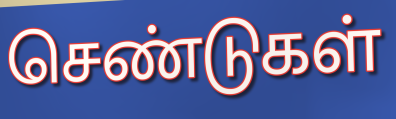
செண்டுகள்